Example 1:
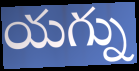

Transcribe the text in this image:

యగ్ను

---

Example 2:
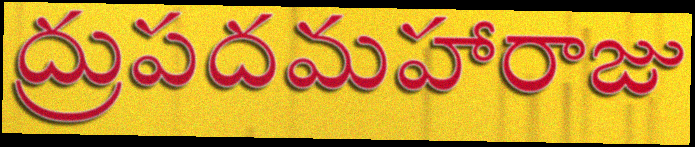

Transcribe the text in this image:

ద్రుపదమహారాజు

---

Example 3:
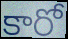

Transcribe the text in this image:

కారో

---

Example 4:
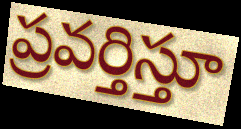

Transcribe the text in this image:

ప్రవర్తిస్తూ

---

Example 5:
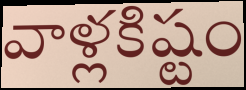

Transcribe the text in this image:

వాళ్లకిష్టం